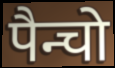
पैन्चो